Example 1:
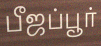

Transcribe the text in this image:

பீஜப்பூர்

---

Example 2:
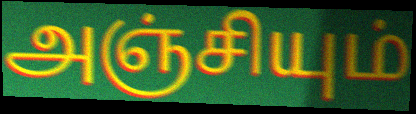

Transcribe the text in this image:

அஞ்சியும்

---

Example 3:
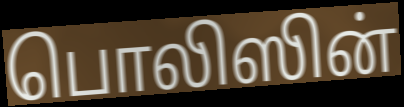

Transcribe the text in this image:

பொலிஸின்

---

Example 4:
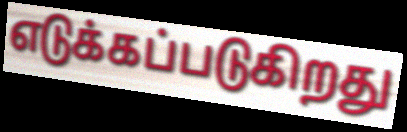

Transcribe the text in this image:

எடுக்கப்படுகிறது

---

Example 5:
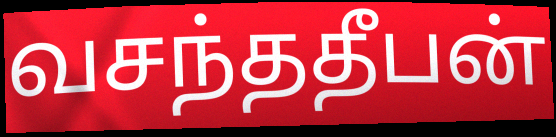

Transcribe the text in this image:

வசந்ததீபன்